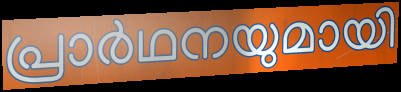
പ്രാർഥനയുമായി